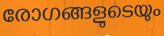
രോഗങ്ങളുടെയും